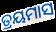
ତ୍ରୟମାସ